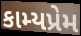
કામ્યપ્રેમ